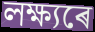
লক্ষ্যৰে